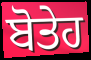
ਬੋਤੇਹ